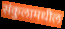
संकुलामधील